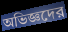
অভিজ্ঞদের